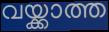
വയ്ക്കാത്ത